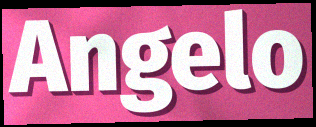
Angelo